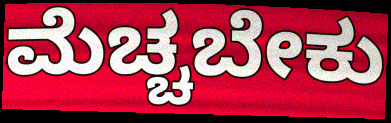
ಮೆಚ್ಚಬೇಕು